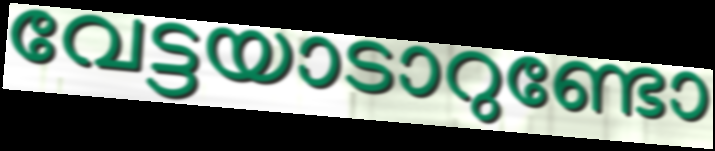
വേട്ടയാടാറുണ്ടോ